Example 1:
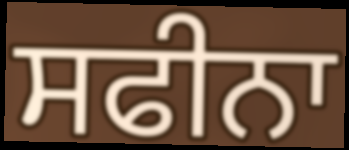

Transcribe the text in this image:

ਸਫੀਨਾ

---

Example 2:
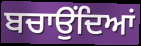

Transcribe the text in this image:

ਬਚਾਉਂਦਿਆਂ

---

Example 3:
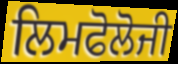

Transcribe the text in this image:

ਲਿਮਫੋਲੋਜੀ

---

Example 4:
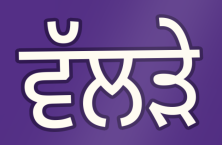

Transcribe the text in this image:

ਵੱਲੜੇ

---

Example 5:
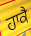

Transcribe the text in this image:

ਹਾਕੈ